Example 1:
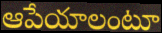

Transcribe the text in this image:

ఆపేయాలంటూ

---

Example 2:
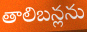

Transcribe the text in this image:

తాలిబన్లను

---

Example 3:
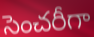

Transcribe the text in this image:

సెంచరీగా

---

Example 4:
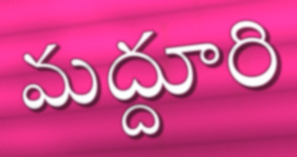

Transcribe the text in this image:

మద్దూరి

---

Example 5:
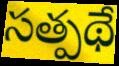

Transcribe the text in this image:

సత్పథే